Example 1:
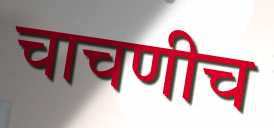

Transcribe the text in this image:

चाचणीच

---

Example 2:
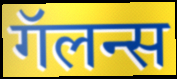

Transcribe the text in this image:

गॅलन्स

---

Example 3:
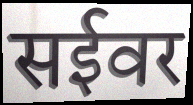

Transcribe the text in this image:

सईवर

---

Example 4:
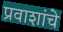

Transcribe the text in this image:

प्रवाशांचे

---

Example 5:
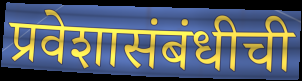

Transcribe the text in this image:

प्रवेशासंबंधीची